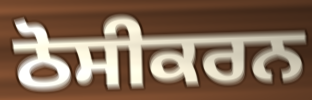
ਠੋਸੀਕਰਨ